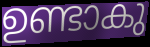
ഉണ്ടാകു